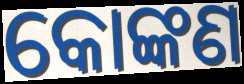
କୋଙ୍କଣ